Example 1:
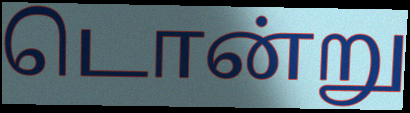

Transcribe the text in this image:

டொன்று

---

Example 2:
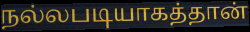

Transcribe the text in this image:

நல்லபடியாகத்தான்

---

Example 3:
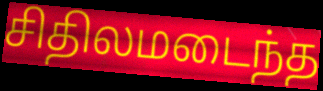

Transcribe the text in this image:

சிதிலமடைந்த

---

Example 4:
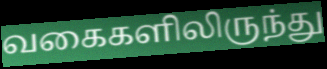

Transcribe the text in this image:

வகைகளிலிருந்து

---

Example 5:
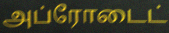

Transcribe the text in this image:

அப்ரோடைட்